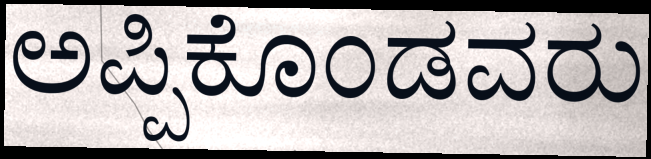
ಅಪ್ಪಿಕೊಂಡವರು